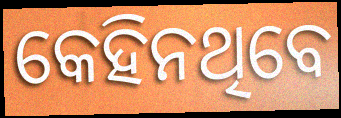
କେହିନଥିବେ